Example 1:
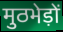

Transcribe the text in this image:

मुठभेड़ों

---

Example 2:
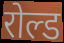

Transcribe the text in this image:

रोल्ड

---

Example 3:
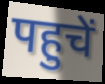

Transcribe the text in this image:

पहुचें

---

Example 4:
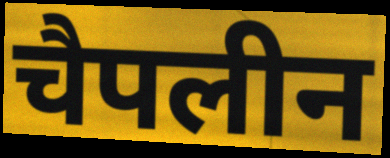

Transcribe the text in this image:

चैपलीन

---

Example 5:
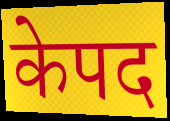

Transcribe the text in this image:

केपद